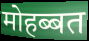
मोहब्‍बत